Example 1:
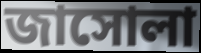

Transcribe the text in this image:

জাসোলা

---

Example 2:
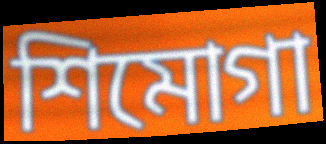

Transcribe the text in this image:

শিমোগা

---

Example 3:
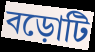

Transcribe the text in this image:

বড়োটি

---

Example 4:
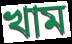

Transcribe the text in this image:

খাম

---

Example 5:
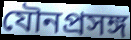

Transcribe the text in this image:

যৌনপ্রসঙ্গ